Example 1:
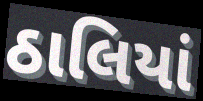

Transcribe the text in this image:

ઠાલિયાં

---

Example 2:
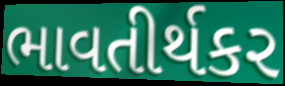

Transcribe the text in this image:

ભાવતીર્થકર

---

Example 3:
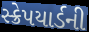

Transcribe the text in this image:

સ્ક્રેપયાર્ડની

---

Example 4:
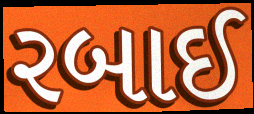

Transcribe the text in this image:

રબાઈ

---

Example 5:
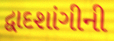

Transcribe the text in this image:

દ્વાદશાંગીની